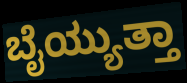
ಬೈಯ್ಯುತ್ತಾ